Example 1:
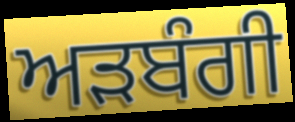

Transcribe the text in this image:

ਅੜਬੰਗੀ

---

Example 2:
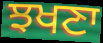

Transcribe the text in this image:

ਝਖਣਾ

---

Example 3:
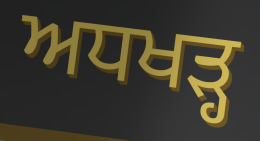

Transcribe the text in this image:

ਅਧਖੜ੍ਹ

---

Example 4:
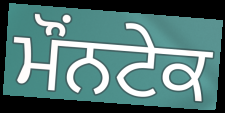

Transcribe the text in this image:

ਮੌਂਨਟੇਕ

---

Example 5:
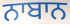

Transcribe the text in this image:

ਨਾਬਾਨ